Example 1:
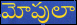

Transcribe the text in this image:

మోపులా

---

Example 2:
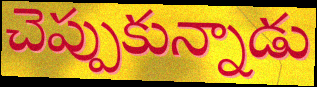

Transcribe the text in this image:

చెప్పుకున్నాడు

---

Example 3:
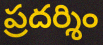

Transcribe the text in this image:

ప్రదర్శిం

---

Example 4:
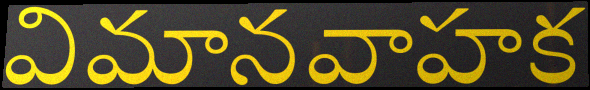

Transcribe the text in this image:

విమానవాహక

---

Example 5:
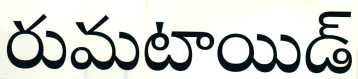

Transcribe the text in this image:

రుమటాయిడ్